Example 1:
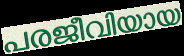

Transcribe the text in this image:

പരജീവിയായ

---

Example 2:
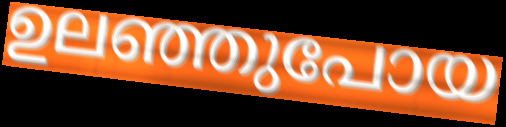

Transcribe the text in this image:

ഉലഞ്ഞുപോയ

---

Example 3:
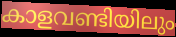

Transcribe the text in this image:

കാളവണ്ടിയിലും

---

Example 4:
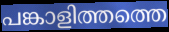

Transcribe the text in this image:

പങ്കാളിത്തത്തെ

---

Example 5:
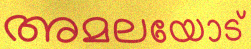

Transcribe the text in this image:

അമലയോട്